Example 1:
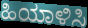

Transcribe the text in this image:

ಹಿಯಾಳಿಸಿ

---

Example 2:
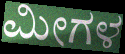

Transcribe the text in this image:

ಮೀಗಳ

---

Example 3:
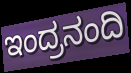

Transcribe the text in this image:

ಇಂದ್ರನಂದಿ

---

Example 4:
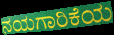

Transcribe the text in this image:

ನಯಗಾರಿಕೆಯ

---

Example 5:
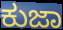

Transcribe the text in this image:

ಕುಜಾ